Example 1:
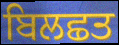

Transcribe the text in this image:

ਬਿਲਛਤ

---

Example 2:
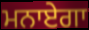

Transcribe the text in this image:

ਮਨਾਏਗਾ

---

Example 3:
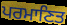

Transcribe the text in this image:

ਪਰਮਾਣਿਤ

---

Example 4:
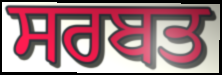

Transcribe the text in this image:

ਸਰਬਤ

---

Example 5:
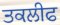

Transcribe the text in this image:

ਤਕਲੀਫ